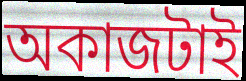
অকাজটাই